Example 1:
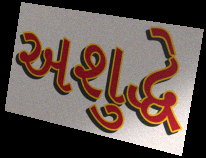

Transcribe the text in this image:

અશુદ્ધે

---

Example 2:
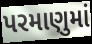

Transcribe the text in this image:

પરમાણુમાં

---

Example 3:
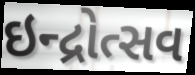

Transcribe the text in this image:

ઇન્દ્રોત્સવ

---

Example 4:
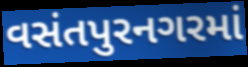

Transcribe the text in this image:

વસંતપુરનગરમાં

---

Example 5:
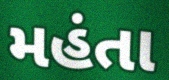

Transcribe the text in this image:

મહંતા